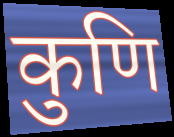
कुणि